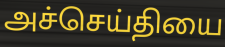
அச்செய்தியை